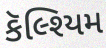
કૅલ્શ્યિમ